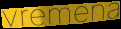
vremena